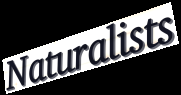
Naturalists